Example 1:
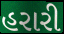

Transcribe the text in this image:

હરારી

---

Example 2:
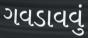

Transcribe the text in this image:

ગવડાવવું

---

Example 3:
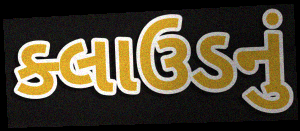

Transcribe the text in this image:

ક્લાઉડનું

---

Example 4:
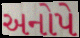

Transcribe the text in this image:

અનોપે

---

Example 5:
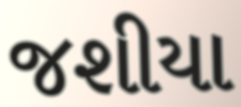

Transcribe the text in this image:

જશીયા